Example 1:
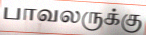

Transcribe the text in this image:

பாவலருக்கு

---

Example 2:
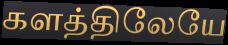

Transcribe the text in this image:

களத்திலேயே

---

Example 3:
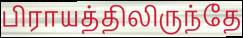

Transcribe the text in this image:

பிராயத்திலிருந்தே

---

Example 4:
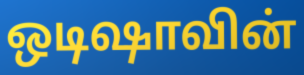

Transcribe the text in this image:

ஒடிஷாவின்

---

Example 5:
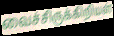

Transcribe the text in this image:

வைச்சிருக்கிறியள்